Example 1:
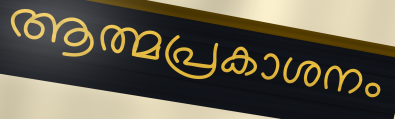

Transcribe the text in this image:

ആത്മപ്രകാശനം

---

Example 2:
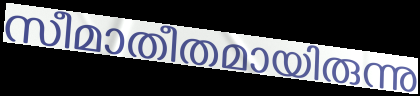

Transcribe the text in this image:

സീമാതീതമായിരുന്നു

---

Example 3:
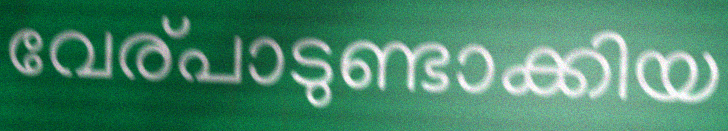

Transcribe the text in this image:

വേര്പാടുണ്ടാക്കിയ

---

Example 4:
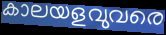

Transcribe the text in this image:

കാലയളവുവരെ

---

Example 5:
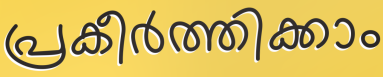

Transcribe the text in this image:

പ്രകീർത്തിക്കാം